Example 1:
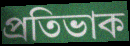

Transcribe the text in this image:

প্ৰতিভাক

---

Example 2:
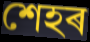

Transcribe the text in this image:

শেহৰ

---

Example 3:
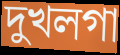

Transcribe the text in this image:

দুখলগা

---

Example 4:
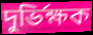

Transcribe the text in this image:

দুৰ্ভিক্ষক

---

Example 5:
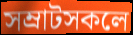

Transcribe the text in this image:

সম্ৰাটসকলে